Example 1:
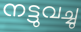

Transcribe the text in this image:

നട്ടുവച്ചു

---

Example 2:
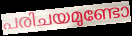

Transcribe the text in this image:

പരിചയമുണ്ടോ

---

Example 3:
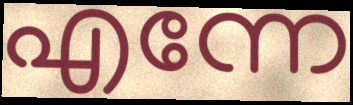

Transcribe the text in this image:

എന്നേ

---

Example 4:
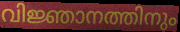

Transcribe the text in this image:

വിജ്ഞാനത്തിനും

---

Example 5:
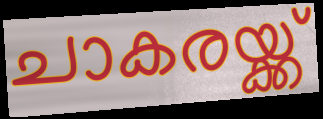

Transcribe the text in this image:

ചാകരയ്ക്ക്